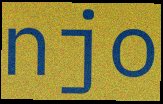
njo